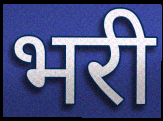
भरी